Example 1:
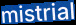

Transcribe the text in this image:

mistrial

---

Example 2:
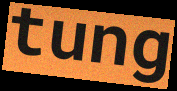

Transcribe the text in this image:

tung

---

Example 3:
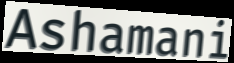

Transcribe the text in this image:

Ashamani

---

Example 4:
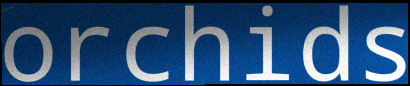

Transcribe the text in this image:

orchids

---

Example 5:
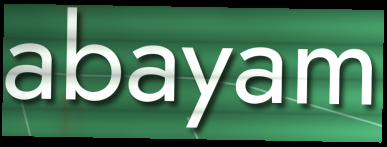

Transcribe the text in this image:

abayam